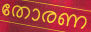
തോരണ